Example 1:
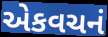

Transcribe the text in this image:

એકવચનં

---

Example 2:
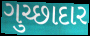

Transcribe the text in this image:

ગુચ્છાદાર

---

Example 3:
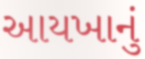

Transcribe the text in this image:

આયખાનું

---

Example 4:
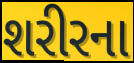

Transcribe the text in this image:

શરીરના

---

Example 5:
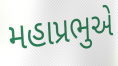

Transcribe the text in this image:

મહાપ્રભુએ